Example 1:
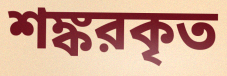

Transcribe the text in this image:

শঙ্করকৃত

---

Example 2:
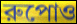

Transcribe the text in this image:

রুপোও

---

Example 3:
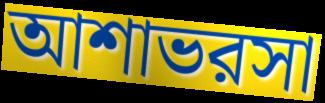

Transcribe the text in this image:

আশাভরসা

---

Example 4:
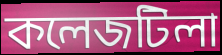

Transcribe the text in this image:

কলেজটিলা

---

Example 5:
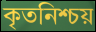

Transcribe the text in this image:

কৃতনিশ্চয়